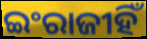
ଇଂରାଜୀହିଁ